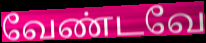
வேண்டவே